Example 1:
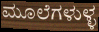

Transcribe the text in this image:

ಮೂಲೆಗಳುಳ್ಳ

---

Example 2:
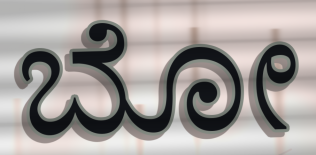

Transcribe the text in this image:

ಬೋ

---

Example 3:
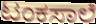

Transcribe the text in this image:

ಟಂಕಸಾಲೆ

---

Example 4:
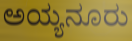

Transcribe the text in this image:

ಅಯ್ಯನೂರು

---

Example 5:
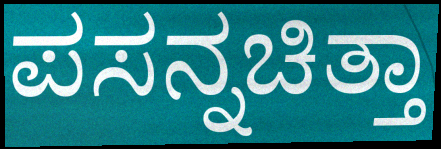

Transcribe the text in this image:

ಪಸನ್ನಚಿತ್ತಾ